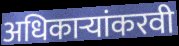
अधिकाऱ्यांकरवी